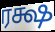
ரக்ஷ